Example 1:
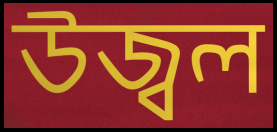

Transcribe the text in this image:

উজ্বল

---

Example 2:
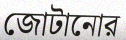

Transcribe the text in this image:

জোটানোর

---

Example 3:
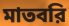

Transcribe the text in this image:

মাতবরি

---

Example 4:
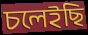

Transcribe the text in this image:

চলেইছি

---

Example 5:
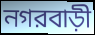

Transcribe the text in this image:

নগরবাড়ী